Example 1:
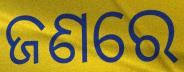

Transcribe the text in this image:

ଜଣରେ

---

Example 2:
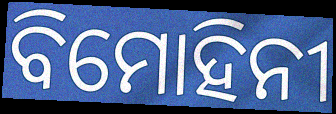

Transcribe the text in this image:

ବିମୋହିନୀ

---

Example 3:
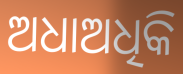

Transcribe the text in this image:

ଅଧାଅଧିକି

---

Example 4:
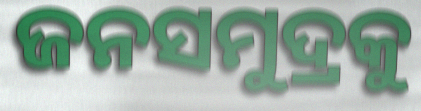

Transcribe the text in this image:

ଜନସମୁଦ୍ରକୁ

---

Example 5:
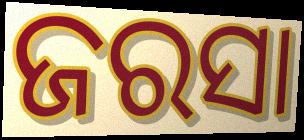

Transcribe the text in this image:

ଜରସା